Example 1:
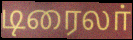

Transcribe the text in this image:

டிரைலர்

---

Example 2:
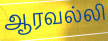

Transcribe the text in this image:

ஆரவல்லி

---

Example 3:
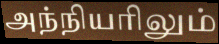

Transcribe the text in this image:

அந்நியரிலும்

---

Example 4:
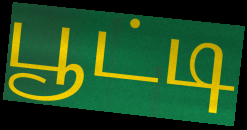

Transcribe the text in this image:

பூட்டி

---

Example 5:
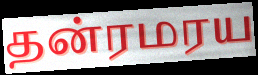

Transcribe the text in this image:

தன்ரமரய